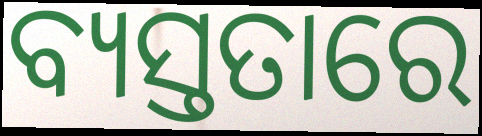
ବ୍ୟସ୍ତତାରେ